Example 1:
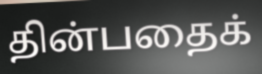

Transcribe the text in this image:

தின்பதைக்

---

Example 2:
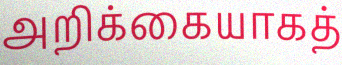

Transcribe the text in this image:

அறிக்கையாகத்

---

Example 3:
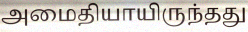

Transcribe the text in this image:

அமைதியாயிருந்தது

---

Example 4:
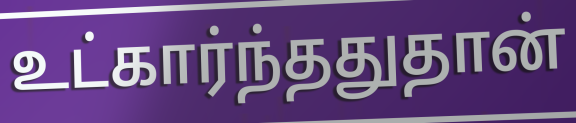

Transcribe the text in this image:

உட்கார்ந்ததுதான்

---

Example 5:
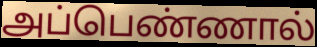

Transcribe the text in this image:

அப்பெண்ணால்